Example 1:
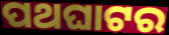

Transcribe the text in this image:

ପଥଘାଟର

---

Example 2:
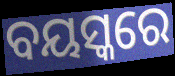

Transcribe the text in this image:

ବୟସ୍କରେ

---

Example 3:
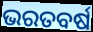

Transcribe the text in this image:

ଭରତବର୍ଷ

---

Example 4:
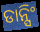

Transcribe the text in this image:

ଡାନ୍ସିଂ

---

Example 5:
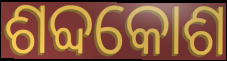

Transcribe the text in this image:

ଶବ୍ଦକୋଶ